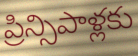
ప్రిన్సిపాళ్లకు